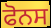
ਫੋਨਸ